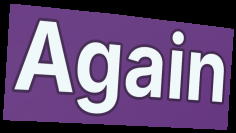
Again